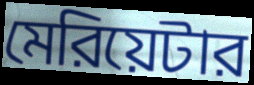
মেরিয়েটার